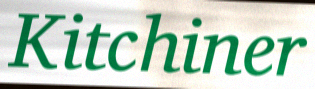
Kitchiner